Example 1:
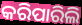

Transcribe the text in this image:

କରିପାରିଲି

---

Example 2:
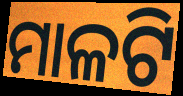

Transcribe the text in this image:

ମାଳଟି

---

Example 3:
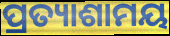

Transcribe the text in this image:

ପ୍ରତ୍ୟାଶାମୟ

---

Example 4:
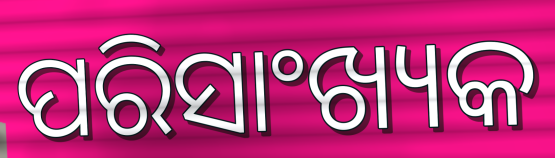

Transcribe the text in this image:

ପରିସାଂଖ୍ୟକ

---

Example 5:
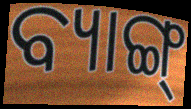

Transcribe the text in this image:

ବ୍ୟାଙ୍ଗ୍